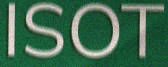
ISOT